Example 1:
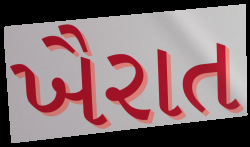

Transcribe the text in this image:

ખૈરાત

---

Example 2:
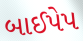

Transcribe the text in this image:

બાઈપેપ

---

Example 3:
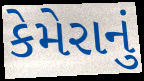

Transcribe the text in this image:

કેમેરાનું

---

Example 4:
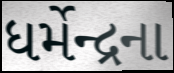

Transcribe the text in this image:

ધર્મેન્દ્રના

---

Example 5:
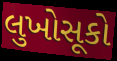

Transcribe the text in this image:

લુખોસૂકો